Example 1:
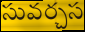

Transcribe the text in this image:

సువర్చస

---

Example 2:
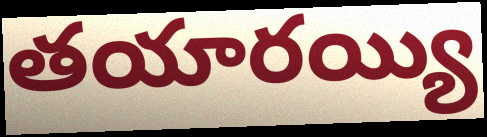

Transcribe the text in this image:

తయారయ్యి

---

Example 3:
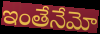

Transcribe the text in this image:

ఇంతేనేమో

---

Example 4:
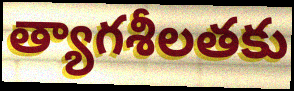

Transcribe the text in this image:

త్యాగశీలతకు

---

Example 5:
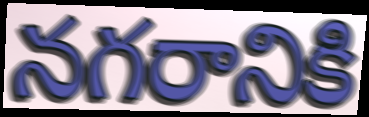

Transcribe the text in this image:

నగరానికి